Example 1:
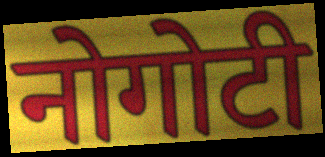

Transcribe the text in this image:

नोगोटी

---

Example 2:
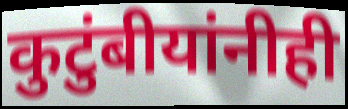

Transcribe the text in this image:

कुटुंबीयांनीही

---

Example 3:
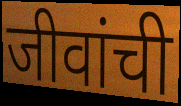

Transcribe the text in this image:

जीवांची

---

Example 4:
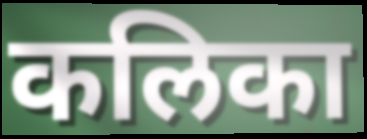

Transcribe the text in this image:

कलिका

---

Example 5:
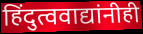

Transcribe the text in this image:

हिंदुत्ववाद्यांनीही